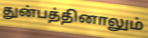
துன்பத்தினாலும்